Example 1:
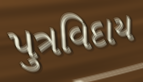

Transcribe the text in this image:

પુત્રવિદાય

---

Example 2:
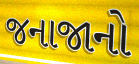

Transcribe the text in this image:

જનાજાનો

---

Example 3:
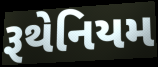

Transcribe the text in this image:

રૂથેનિયમ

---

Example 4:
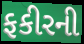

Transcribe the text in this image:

ફકીરની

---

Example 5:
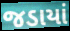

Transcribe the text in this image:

જડાયાં